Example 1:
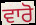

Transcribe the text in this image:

ਵਾਰੋ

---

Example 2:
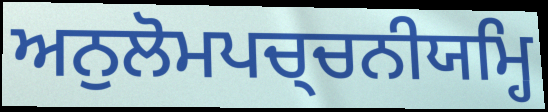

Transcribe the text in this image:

ਅਨੁਲੋਮਪਚ੍ਚਨੀਯਮ੍ਹਿ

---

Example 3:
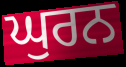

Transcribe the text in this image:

ਘੁਰਨ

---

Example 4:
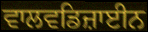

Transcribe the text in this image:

ਵਾਲਵਡਿਜ਼ਾਈਨ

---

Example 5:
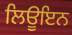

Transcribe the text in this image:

ਲਿਊਇਨ